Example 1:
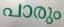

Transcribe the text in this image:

പാരും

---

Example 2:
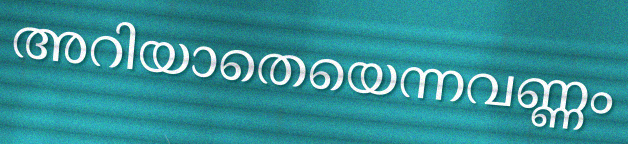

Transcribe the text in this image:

അറിയാതെയെന്നവണ്ണം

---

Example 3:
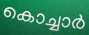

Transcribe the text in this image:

കൊച്ചാർ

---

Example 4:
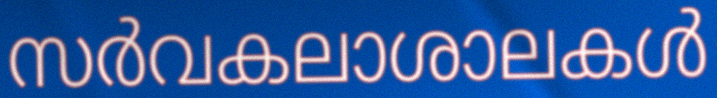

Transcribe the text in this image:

സർവകലാശാലകൾ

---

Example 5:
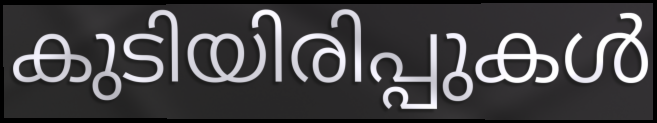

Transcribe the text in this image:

കുടിയിരിപ്പുകൾ